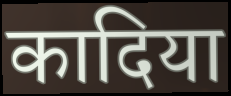
कादिया